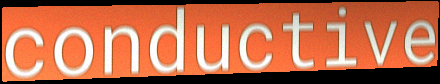
conductive